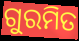
ଗୁରମିତ